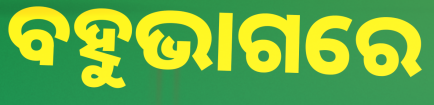
ବହୁଭାଗରେ